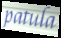
patula